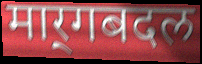
मार्गबदल